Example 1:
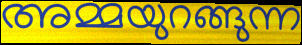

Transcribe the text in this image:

അമ്മയുറങ്ങുന്ന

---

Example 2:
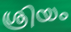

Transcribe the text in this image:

ശ്രിയം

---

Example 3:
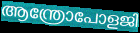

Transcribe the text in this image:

ആന്ത്രോപോളജി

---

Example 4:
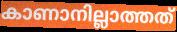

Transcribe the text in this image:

കാണാനില്ലാത്തത്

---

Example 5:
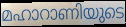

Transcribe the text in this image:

മഹാറാണിയുടെ